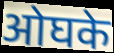
ओघके